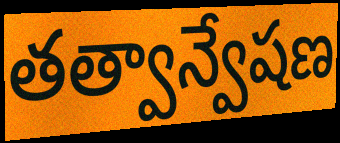
తత్వాన్వేషణ